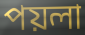
পয়লা